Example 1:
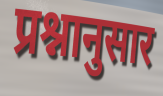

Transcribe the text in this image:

प्रश्नानुसार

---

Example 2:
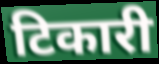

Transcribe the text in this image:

टिकारी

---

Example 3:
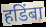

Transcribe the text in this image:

हडिंबा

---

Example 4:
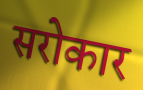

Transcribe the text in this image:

सरोकार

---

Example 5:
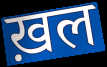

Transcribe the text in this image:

ख़ल